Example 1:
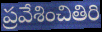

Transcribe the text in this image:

ప్రవేశించితిరి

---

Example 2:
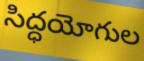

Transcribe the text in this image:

సిద్ధయోగుల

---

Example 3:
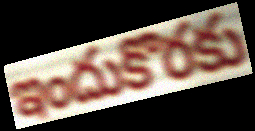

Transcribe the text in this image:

ఇందుకొరకు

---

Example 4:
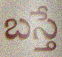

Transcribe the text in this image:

బస్తే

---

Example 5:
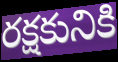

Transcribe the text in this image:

రక్షకునికి